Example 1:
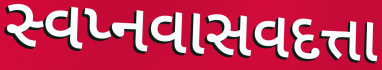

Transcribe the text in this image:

સ્વપ્નવાસવદત્તા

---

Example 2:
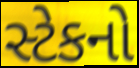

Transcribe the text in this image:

સ્ટેકનો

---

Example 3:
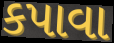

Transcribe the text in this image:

કપાવા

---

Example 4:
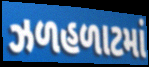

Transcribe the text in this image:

ઝળહળાટમાં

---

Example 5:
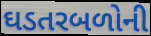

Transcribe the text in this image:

ઘડતરબળોની